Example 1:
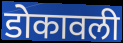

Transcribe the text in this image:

डोकावली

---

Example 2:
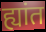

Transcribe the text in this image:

ह्यांत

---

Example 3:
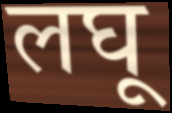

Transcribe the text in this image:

लघू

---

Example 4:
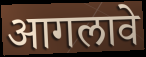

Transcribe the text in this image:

आगलावे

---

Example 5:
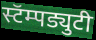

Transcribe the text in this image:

स्टॅम्पड्युटी